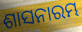
ଶାସନାରମ୍ଭ